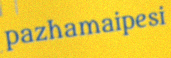
pazhamaipesi